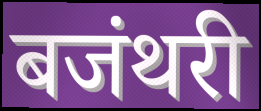
बजंथरी